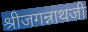
श्रीजगन्नाथजी